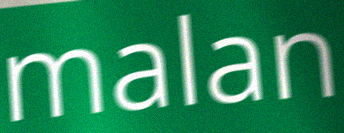
malan